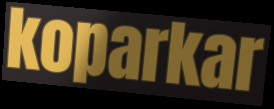
koparkar